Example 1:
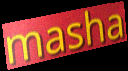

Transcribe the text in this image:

masha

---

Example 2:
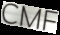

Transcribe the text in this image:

CMF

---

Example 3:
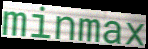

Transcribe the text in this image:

minmax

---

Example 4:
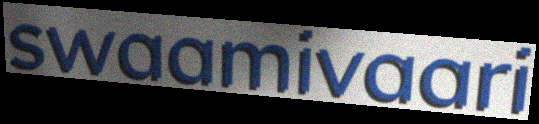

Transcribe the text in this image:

swaamivaari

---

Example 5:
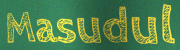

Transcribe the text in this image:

Masudul